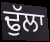
ਢੁੱਲਾ